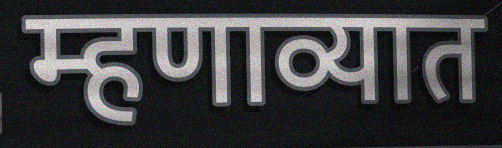
म्हणाव्यात